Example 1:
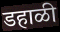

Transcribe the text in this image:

डहाळी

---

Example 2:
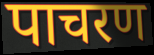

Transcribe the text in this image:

पाचरण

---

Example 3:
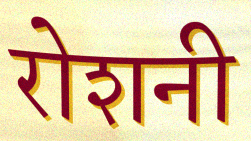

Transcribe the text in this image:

रोशनी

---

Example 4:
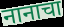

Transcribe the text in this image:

नानाचा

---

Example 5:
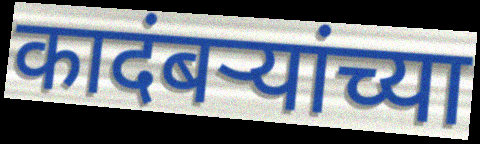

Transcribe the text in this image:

कादंबऱ्यांच्या